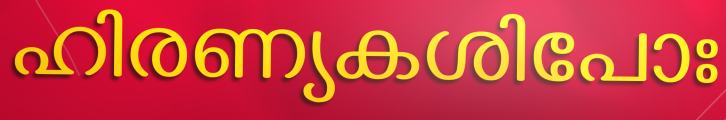
ഹിരണ്യകശിപോഃ